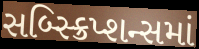
સબ્સ્ક્રિપ્શન્સમાં